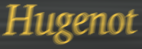
Hugenot